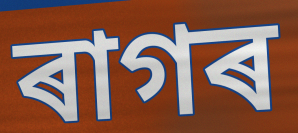
ৰাগৰ